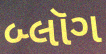
બ્લૉગ